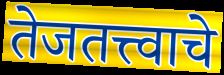
तेजतत्त्वाचे